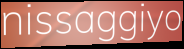
nissaggiyo